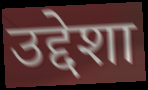
उद्देशा